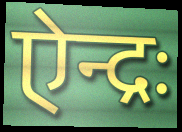
ऐन्द्रः